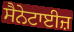
ਸੈਨੇਟਾਈਜ਼